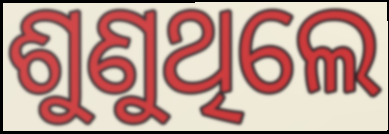
ଶୁଣୁଥିଲେ